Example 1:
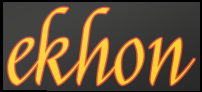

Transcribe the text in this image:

ekhon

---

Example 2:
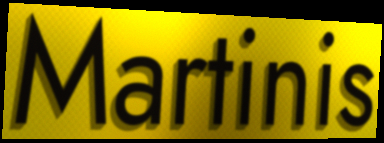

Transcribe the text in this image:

Martinis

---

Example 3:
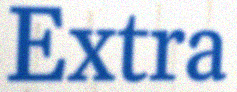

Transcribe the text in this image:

Extra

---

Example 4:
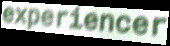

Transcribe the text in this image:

experiencer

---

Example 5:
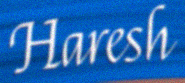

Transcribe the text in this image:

Haresh